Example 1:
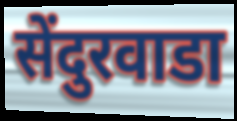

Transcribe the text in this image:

सेंदुरवाडा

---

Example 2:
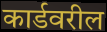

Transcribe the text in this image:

कार्डवरील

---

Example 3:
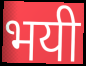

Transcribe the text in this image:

भयी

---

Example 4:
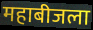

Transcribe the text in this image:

महाबीजला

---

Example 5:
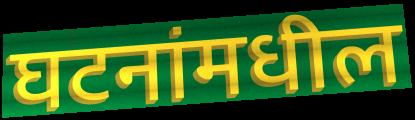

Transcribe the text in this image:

घटनांमधील